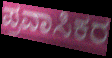
ಪ್ರವಾಸಿಕರ